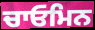
ਚਾਓਮਿਨ